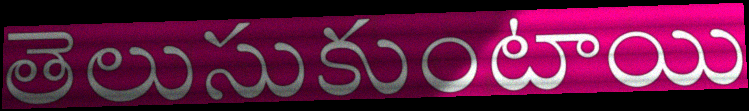
తెలుసుకుంటాయి